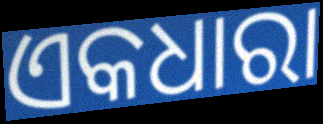
ଏକଧାରା